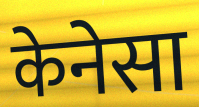
केनेसा